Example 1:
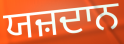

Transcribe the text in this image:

ਯਜ਼ਦਾਨ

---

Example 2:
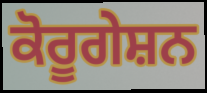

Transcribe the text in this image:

ਕੋਰੂਗੇਸ਼ਨ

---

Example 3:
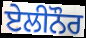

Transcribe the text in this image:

ਏਲੀਨੌਰ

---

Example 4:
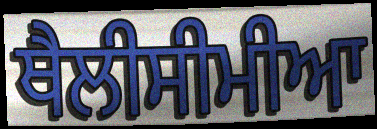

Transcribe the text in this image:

ਥੈਲੀਸੀਮੀਆ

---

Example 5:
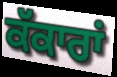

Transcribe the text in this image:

ਕੱਕਾਰਾਂ